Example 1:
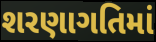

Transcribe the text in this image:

શરણાગતિમાં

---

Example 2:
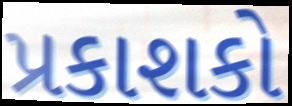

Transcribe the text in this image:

પ્રકાશકો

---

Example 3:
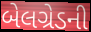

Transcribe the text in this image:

બેલગ્રેડની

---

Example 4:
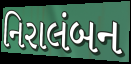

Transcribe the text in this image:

નિરાલંબન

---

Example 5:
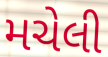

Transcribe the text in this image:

મચેલી